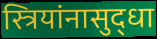
स्त्रियांनासुद्धा